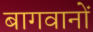
बागवानों